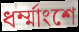
ধর্ম্মাংশে